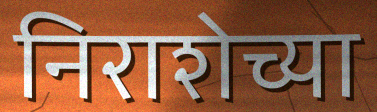
निराशेच्या